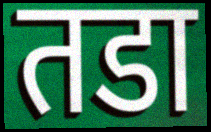
तडा